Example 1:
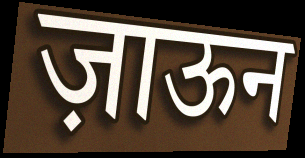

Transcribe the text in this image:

ज़ाऊन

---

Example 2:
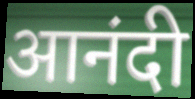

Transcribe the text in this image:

आनंदी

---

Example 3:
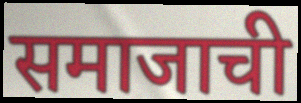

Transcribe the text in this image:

समाजाची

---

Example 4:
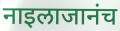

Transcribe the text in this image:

नाइलाजानंच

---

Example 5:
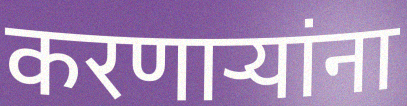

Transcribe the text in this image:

करणाऱ्यांना